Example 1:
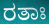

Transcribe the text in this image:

ರತಾಃ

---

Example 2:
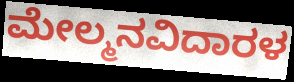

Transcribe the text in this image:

ಮೇಲ್ಮನವಿದಾರಳ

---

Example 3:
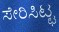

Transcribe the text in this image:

ಸೇರಿಸಿಟ್ಟ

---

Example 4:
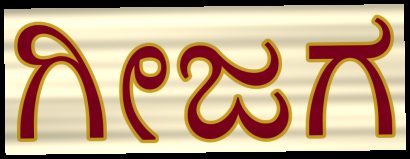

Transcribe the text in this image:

ಗೀಜಗ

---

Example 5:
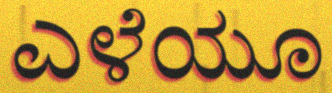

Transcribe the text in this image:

ಎಳೆಯೂ